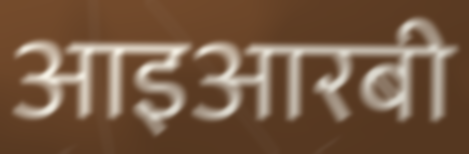
आइआरबी